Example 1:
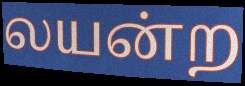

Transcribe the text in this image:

லயன்ற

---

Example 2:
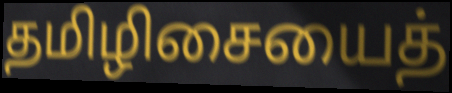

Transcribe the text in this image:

தமிழிசையைத்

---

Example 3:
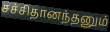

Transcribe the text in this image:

சச்சிதானந்தனும்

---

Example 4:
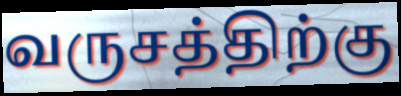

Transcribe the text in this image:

வருசத்திற்கு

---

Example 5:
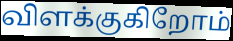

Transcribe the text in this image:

விளக்குகிறோம்